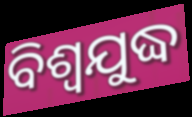
ବିଶ୍ୱଯୁଦ୍ଧ